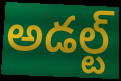
అడల్ట్